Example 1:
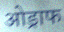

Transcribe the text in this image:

ओड्राफ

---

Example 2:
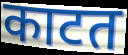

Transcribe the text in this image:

काटत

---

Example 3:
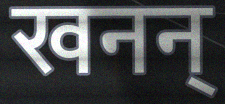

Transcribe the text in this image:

खनन्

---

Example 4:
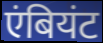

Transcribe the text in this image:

एंबियंट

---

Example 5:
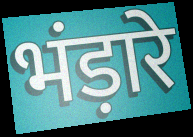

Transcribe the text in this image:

भंड़ारे